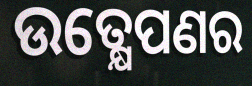
ଉତ୍କ୍ଷେପଣର